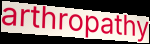
arthropathy